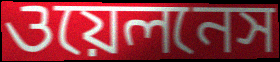
ওয়েলনেস